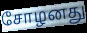
சோழனது